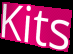
Kits